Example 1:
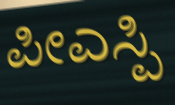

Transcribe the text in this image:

ಪೀಎಸ್ಪಿ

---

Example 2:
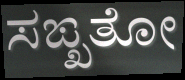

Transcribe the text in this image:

ಸಙ್ಖತೋ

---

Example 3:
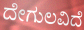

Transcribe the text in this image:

ದೇಗುಲವಿದೆ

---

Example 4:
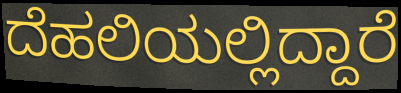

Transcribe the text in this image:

ದೆಹಲಿಯಲ್ಲಿದ್ದಾರೆ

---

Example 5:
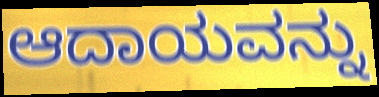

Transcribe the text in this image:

ಆದಾಯವನ್ನು